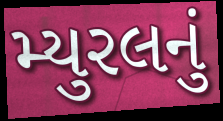
મ્યુરલનું